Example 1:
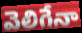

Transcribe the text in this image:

వెలిగేనా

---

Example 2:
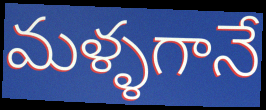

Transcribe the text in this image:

మళ్ళగానే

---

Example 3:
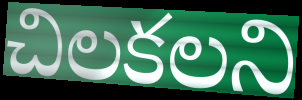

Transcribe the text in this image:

చిలకలని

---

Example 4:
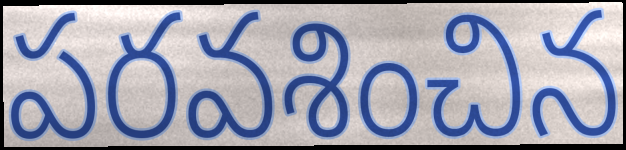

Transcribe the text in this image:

పరవశించిన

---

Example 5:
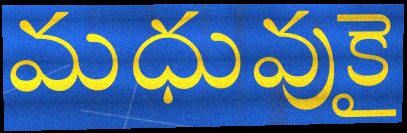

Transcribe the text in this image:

మధువుకై